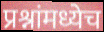
प्रश्नांमध्येच